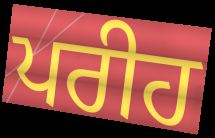
ਪਰੀਹ